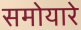
समोयारे